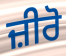
ਜ਼ੀਰੋ